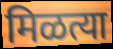
मिळत्या